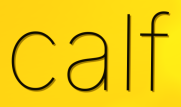
calf